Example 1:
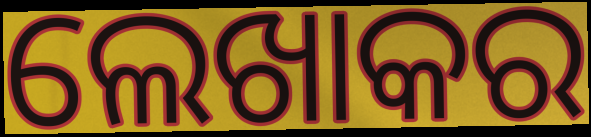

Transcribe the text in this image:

ଲେଖାକର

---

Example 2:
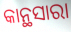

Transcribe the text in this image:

କାନ୍ଥସାରା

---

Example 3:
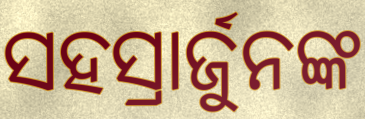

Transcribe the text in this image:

ସହସ୍ରାର୍ଜୁନଙ୍କ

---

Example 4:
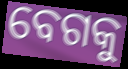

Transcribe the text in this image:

ବେଗକୁ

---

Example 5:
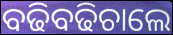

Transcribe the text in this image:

ବଢିବଢିଚାଲେ